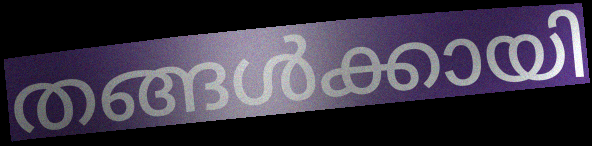
തങ്ങൾക്കായി